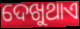
ଦେଖୁଥାଏ